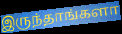
இருந்தாங்களா